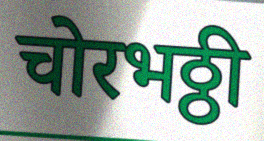
चोरभठ्ठी